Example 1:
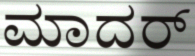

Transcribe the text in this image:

ಮಾದರ್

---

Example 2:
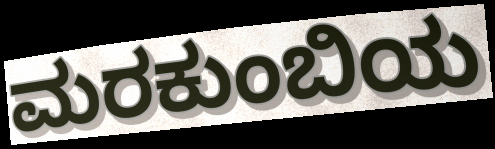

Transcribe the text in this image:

ಮರಕುಂಬಿಯ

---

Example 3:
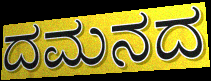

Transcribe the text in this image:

ದಮನದ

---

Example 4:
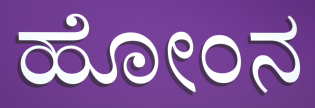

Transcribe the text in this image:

ಹೋಂನ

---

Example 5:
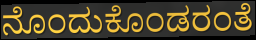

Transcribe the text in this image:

ನೊಂದುಕೊಂಡರಂತೆ